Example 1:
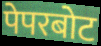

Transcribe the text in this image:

पेपरबोट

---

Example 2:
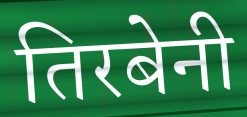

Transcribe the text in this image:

तिरबेनी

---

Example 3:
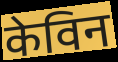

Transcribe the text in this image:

केविन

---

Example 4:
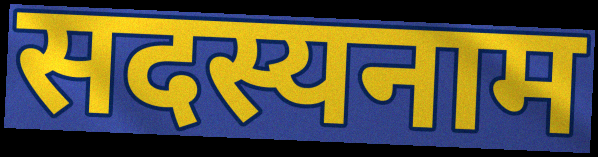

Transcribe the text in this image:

सदस्यनाम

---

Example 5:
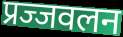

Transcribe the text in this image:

प्रज्‍जवलन